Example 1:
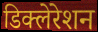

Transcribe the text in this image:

डिक्लेरेशन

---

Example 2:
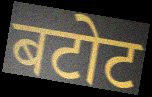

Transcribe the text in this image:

बटोट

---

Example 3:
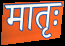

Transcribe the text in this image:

मातृः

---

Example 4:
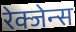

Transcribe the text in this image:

रेक्जेन्स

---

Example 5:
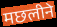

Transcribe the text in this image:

मछलीने